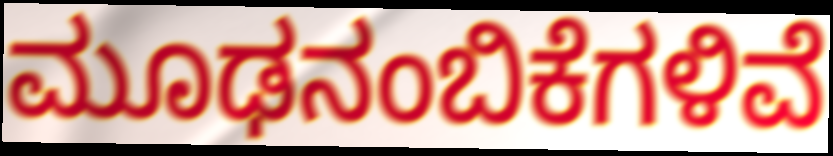
ಮೂಢನಂಬಿಕೆಗಳಿವೆ